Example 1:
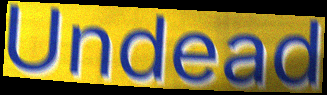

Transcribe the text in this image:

Undead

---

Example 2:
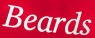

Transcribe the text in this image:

Beards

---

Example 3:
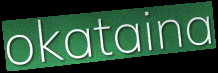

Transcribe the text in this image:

okataina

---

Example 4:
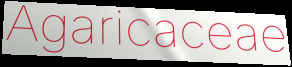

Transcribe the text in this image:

Agaricaceae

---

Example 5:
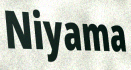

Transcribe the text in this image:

Niyama